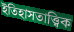
ইতিহাসতাত্ত্বিক